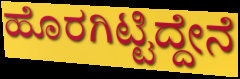
ಹೊರಗಿಟ್ಟಿದ್ದೇನೆ